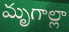
మృగాల్లా